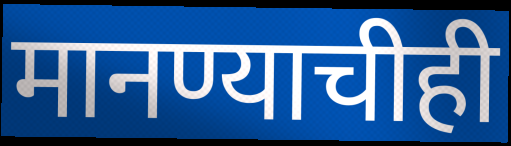
मानण्याचीही